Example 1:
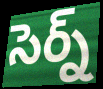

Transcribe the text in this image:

సెర్న్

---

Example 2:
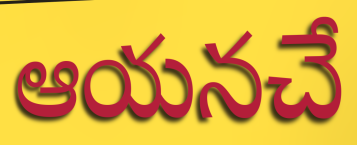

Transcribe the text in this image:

ఆయనచే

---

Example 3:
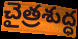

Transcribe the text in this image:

చైత్రశుద్ధ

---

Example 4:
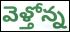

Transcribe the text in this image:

వెళ్తోన్న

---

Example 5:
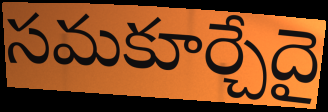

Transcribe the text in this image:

సమకూర్చేదై